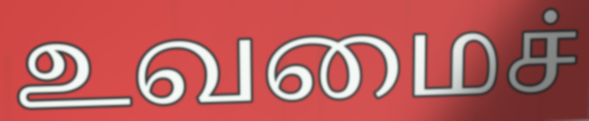
உவமைச்